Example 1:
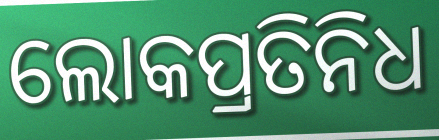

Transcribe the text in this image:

ଲୋକପ୍ରତିନିଧ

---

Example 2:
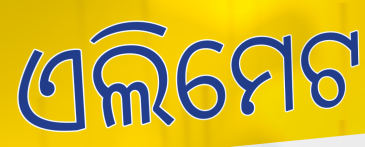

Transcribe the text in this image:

ଏଲିମେଟ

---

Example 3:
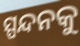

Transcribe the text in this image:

ସ୍ପନ୍ଦନକୁ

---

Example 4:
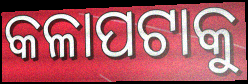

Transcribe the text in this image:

କଳାପଟାକୁ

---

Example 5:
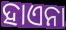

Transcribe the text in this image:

ହାଏନା